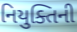
નિયુક્તિની